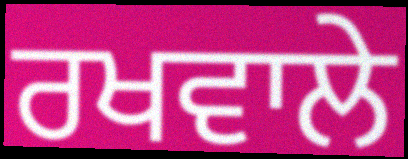
ਰਖਵਾਲੇ